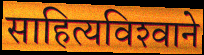
साहित्यविश्वाने